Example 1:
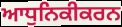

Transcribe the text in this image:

ਆਧੁਨਿਕੀਕਰਨ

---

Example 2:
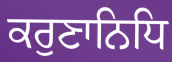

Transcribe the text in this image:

ਕਰੁਣਾਨਿਧਿ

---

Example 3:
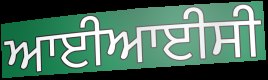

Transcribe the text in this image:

ਆਈਆਈਸੀ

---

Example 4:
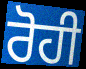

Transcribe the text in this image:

ਰੋਹੀ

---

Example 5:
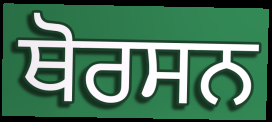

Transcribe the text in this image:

ਥੋਰਸਨ